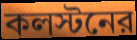
কলস্টনের